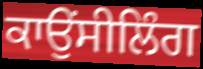
ਕਾਉਂਸੀਲਿੰਗ